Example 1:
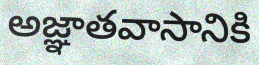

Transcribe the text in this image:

అజ్ఞాతవాసానికి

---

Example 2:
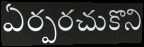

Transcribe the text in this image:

ఏర్పరచుకొని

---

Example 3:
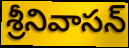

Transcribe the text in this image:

శ్రీనివాసన్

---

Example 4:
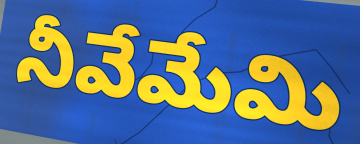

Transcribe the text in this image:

నీవేమేమి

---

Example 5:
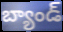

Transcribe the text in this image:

బ్యాండ్